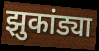
झुकांड्या